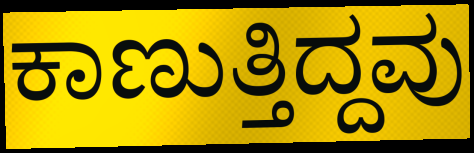
ಕಾಣುತ್ತಿದ್ದವು